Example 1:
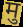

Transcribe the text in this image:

मु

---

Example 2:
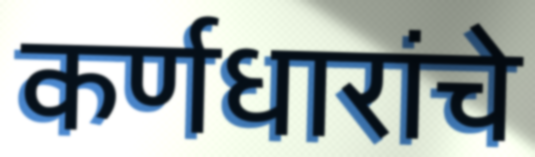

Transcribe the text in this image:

कर्णधारांचे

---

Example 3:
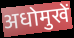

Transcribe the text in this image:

अधोमुखें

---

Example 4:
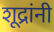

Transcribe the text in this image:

शूद्रांनी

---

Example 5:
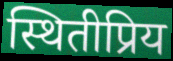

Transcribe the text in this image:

स्थितीप्रिय